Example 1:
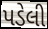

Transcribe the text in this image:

પડેલી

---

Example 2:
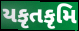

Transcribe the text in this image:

યકૃતકૃમિ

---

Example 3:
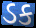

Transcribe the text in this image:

ડક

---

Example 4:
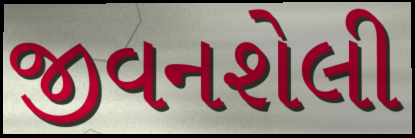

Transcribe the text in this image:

જીવનશેલી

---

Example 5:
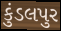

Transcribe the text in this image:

કુંડલપુર